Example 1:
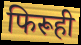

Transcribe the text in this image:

फिरूही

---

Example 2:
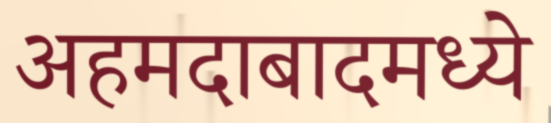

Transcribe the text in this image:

अहमदाबादमध्ये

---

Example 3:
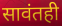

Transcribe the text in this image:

सावंतही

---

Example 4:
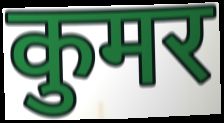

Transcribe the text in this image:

कुमर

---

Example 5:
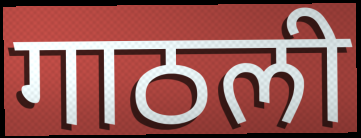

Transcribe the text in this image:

गाठली